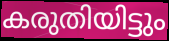
കരുതിയിട്ടും